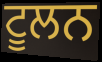
ਟੂਲਨ